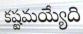
కష్టమయ్యేది